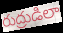
రుద్రుడిలా